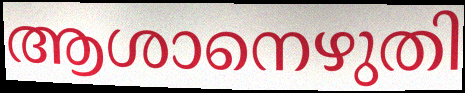
ആശാനെഴുതി